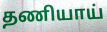
தணியாய்